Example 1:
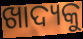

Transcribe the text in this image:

ଖାଦ୍ୟକୁ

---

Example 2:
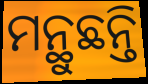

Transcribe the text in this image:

ମନ୍ଥୁଛନ୍ତି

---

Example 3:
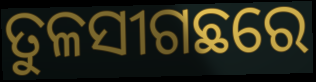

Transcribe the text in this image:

ତୁଳସୀଗଛରେ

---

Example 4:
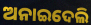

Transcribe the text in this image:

ଅନାଇଦେଲି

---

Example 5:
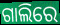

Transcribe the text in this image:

ଗାଲିରେ